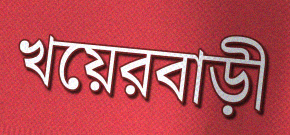
খয়েরবাড়ী